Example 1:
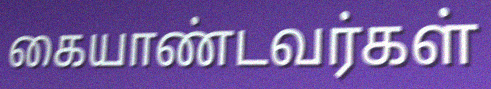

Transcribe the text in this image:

கையாண்டவர்கள்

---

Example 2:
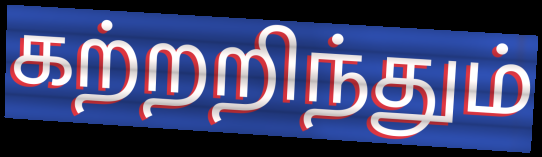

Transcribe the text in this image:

கற்றறிந்தும்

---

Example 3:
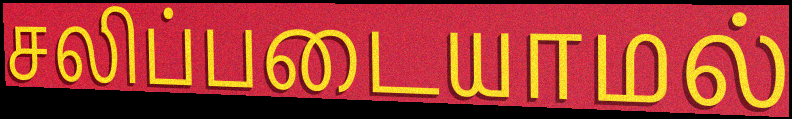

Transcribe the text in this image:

சலிப்படையாமல்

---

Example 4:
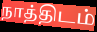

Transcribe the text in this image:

நாத்திடம்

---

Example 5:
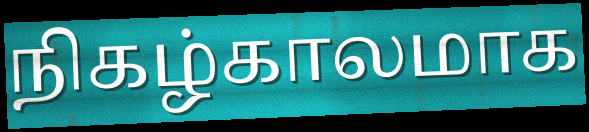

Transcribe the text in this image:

நிகழ்காலமாக